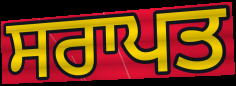
ਸਰਾਪਤ